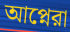
আপ্নেরা